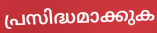
പ്രസിദ്ധമാക്കുക